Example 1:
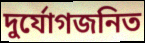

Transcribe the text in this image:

দুর্যোগজনিত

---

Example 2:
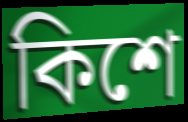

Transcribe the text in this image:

কিশে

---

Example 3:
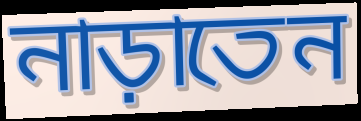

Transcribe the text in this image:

নাড়াতেন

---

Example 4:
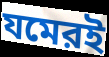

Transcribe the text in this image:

যমেরই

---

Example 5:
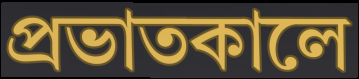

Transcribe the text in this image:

প্রভাতকালে